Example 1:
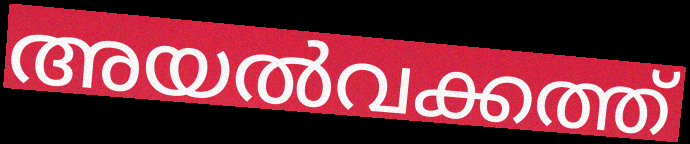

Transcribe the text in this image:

അയൽവക്കത്ത്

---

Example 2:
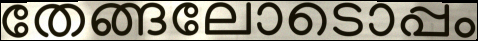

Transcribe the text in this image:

തേങ്ങലോടൊപ്പം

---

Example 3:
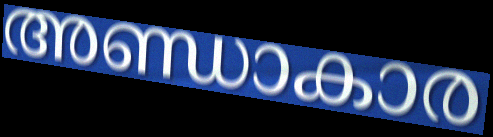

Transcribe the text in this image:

അണ്ഡാകാര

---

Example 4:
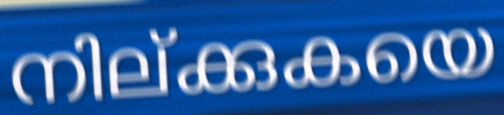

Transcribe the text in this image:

നില്ക്കുകയെ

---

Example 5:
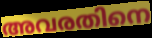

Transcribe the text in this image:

അവരതിനെ